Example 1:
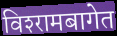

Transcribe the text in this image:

विश्रामबागेत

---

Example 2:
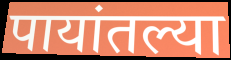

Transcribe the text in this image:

पायांतल्या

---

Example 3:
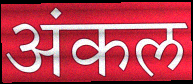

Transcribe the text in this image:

अंकल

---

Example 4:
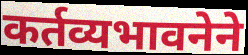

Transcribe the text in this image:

कर्तव्यभावनेने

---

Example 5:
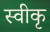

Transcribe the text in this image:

स्वीकृ